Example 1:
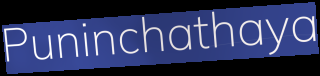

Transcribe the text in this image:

Puninchathaya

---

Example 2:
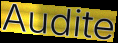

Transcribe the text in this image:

Audite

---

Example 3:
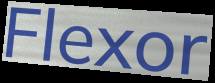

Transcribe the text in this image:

Flexor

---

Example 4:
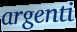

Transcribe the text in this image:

argenti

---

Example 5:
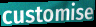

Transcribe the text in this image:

customise